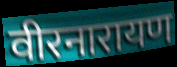
वीरनारायण